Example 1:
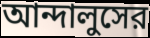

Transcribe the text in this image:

আন্দালুসের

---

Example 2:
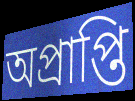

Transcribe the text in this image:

অপ্রাপ্তি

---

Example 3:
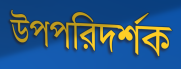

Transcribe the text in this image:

উপপরিদর্শক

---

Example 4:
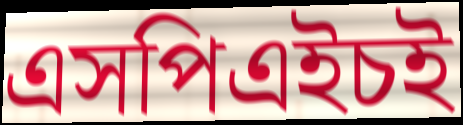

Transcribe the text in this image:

এসপিএইচই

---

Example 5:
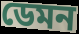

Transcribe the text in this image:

ডেমন